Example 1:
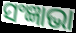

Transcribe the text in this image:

ସଂଜ୍ଞାଭା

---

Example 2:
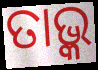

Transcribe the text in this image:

ତାଭ୍କ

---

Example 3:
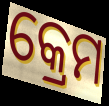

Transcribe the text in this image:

କ୍ରେମ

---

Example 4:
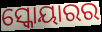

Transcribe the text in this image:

ସ୍କୋୟାରର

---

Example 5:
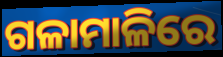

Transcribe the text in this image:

ଗଳାମାଳିରେ